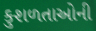
કુશળતાઓની